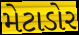
મેટાડોર